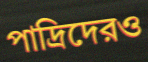
পাদ্রিদেরও